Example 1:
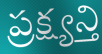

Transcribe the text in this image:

ప్రక్ష్యన్తి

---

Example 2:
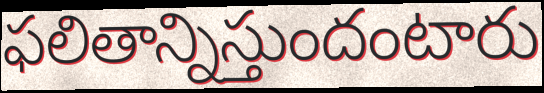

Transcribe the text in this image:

ఫలితాన్నిస్తుందంటారు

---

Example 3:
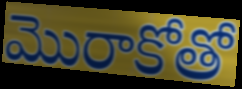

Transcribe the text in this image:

మొరాకోతో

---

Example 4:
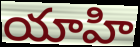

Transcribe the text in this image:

యాహి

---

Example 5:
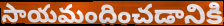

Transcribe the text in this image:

సాయమందించడానికి